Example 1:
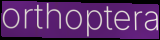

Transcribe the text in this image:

orthoptera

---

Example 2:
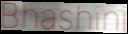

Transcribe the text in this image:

Bhashini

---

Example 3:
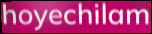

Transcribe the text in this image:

hoyechilam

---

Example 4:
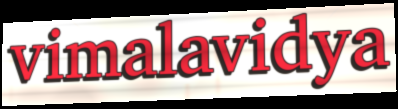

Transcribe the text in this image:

vimalavidya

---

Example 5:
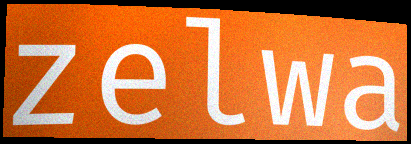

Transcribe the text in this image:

zelwa